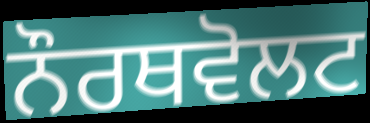
ਨੌਰਥਵੋਲਟ